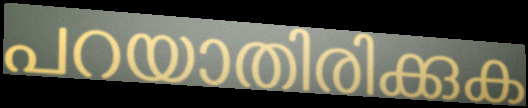
പറയാതിരിക്കുക